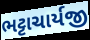
ભટ્ટાચાર્યજી